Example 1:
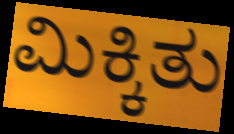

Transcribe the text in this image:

ಮಿಕ್ಕಿತು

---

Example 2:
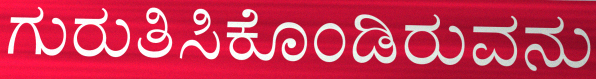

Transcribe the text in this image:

ಗುರುತಿಸಿಕೊಂಡಿರುವನು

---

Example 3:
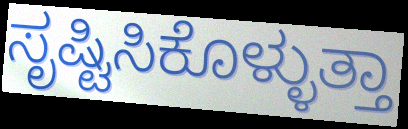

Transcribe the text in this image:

ಸೃಷ್ಟಿಸಿಕೊಳ್ಳುತ್ತಾ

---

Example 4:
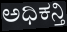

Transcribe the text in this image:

ಅಧಿಕನ್ತಿ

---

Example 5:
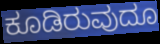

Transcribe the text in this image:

ಕೂಡಿರುವುದೂ